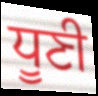
ਧੂਣੀ